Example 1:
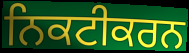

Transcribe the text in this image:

ਨਿਕਟੀਕਰਨ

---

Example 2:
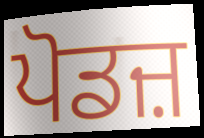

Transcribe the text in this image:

ਪੋਡਜ਼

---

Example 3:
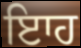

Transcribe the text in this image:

ਇਾਹ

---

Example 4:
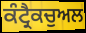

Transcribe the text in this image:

ਕੰਟ੍ਰੈਕਚੁਅਲ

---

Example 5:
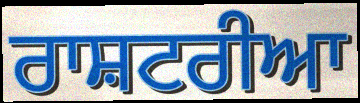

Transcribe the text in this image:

ਰਾਸ਼ਟਰੀਆ